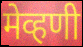
मेव्हणी